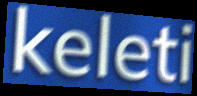
keleti